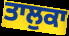
ਤਾਲੁਕਾ